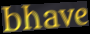
bhave